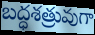
బద్ధశత్రువుగా